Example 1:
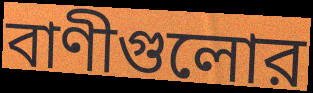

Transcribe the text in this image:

বাণীগুলোর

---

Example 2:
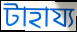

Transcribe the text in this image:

টাহায্য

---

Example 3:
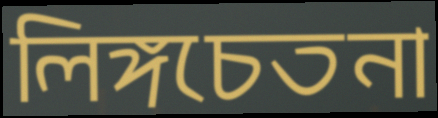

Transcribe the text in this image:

লিঙ্গচেতনা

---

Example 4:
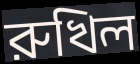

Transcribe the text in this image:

রুখিল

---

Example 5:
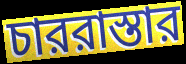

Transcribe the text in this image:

চাররাস্তার